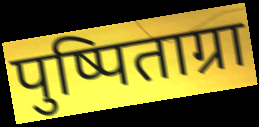
पुष्पिताग्रा